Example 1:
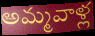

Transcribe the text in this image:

అమ్మవాళ్ల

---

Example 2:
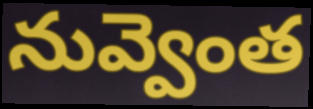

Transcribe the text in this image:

నువ్వెంత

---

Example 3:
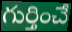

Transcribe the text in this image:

గుర్తించే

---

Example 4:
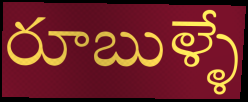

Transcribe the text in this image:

రూబుళ్ళే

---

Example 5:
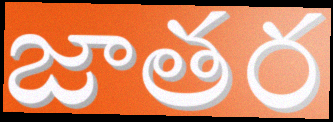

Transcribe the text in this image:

జాతర